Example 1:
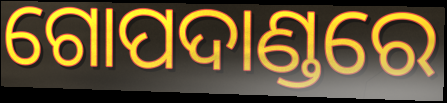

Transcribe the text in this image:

ଗୋପଦାଣ୍ଡରେ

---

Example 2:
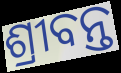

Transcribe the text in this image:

ଶ୍ରୀବନ୍ତ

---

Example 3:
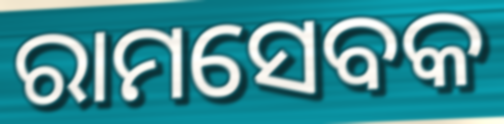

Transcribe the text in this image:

ରାମସେବକ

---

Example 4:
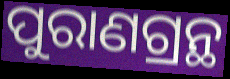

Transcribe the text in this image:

ପୁରାଣଗ୍ରନ୍ଥ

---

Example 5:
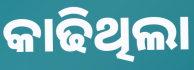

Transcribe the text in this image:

କାଢିଥିଲା